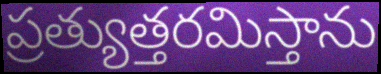
ప్రత్యుత్తరమిస్తాను